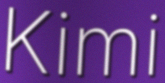
Kimi